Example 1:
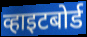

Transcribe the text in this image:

व्हाइटबोर्ड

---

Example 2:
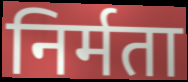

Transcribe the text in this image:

निर्मता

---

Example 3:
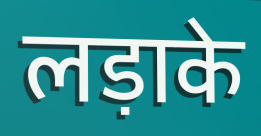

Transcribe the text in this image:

लड़ाके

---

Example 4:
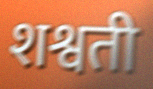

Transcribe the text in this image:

शश्वती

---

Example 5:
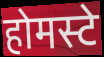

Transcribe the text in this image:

होमस्टे